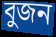
বুজন